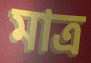
মাত্ৰ